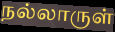
நல்லாருள்